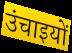
उंचाइयों